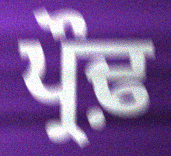
ਪ੍ਰੌਢ਼